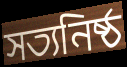
সত্যনিষ্ঠ